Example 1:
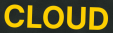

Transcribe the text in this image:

CLOUD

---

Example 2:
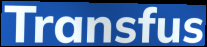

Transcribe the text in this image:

Transfus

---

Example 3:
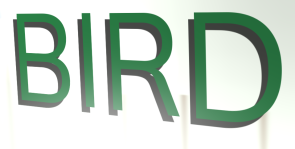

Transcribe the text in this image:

BIRD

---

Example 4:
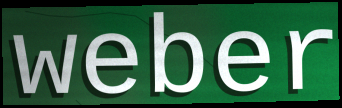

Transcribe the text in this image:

weber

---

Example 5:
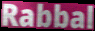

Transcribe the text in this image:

Rabbal